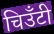
चिउँटी